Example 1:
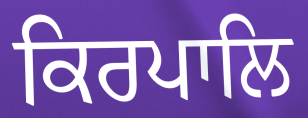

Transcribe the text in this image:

ਕਿਰਪਾਲਿ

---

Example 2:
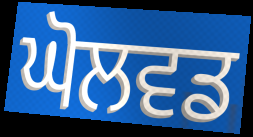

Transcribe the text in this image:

ਘੋਲਵਡ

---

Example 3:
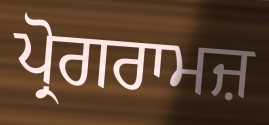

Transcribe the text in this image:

ਪ੍ਰੋਗਰਾਮਜ਼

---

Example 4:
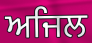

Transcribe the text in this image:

ਅਜਿਲ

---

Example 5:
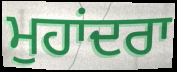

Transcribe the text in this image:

ਮੁਹਾਂਦਰਾ